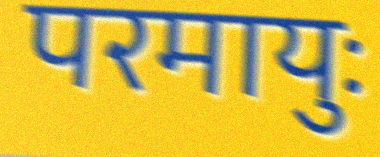
परमायुः